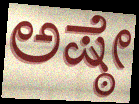
ಅಷ್ಠೇ